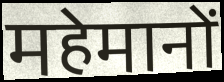
महेमानों